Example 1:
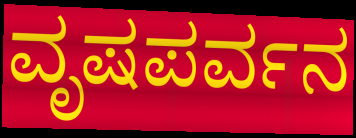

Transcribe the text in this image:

ವೃಷಪರ್ವನ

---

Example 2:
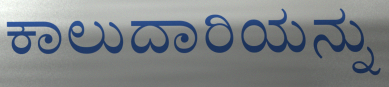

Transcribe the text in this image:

ಕಾಲುದಾರಿಯನ್ನು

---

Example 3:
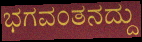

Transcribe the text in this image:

ಭಗವಂತನದ್ದು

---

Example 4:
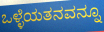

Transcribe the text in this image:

ಒಳ್ಳೆಯತನವನ್ನೂ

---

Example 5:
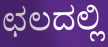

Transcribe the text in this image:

ಛಲದಲ್ಲಿ